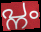
പ്നം